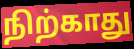
நிற்காது